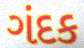
ગંદક